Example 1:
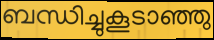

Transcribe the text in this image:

ബന്ധിച്ചുകൂടാഞ്ഞു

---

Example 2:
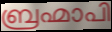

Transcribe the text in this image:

ബ്രഹ്മാപി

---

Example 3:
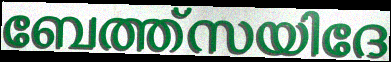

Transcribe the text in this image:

ബേത്ത്സയിദേ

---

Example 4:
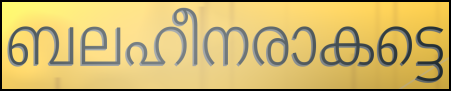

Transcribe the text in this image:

ബലഹീനരാകട്ടെ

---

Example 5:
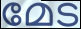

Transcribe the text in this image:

മേട